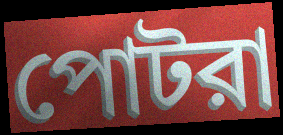
পোটরা